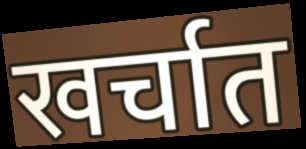
खर्चात